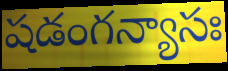
షడంగన్యాసః